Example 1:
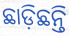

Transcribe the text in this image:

ଛାଡ଼ିଛନ୍ତି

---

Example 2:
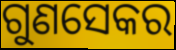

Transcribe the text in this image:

ଗୁଣସେକର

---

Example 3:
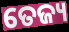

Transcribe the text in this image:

ତେଜ୍ୟ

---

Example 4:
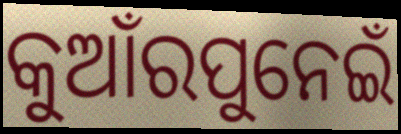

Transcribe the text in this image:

କୁଆଁରପୁନେଇଁ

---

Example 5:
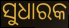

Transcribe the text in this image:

ସୁଧାରକ